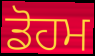
ਡੋਹਮ